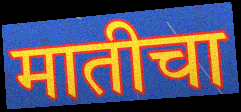
मातीचा